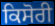
ਕਿਸੋਰੀ